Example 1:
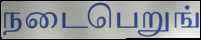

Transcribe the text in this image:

நடைபெறுங்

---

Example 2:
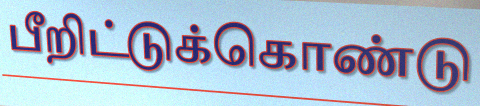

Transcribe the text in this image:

பீறிட்டுக்கொண்டு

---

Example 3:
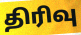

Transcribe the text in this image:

திரிவு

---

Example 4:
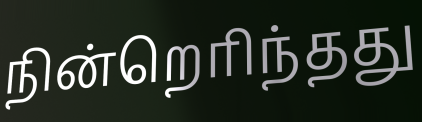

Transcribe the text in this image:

நின்றெரிந்தது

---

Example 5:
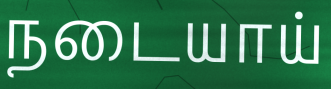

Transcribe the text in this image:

நடையாய்